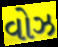
વોઝ